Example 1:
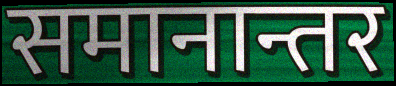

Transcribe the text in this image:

समानान्तर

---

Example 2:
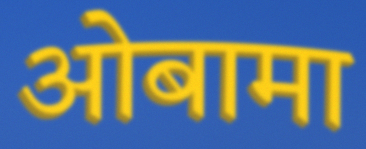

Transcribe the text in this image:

ओबामा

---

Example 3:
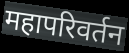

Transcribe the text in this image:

महापरिवर्तन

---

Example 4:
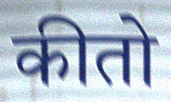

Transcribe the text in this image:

कीतो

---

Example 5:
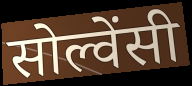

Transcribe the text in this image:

सोल्वेंसी